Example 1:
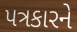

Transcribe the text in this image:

પત્રકારને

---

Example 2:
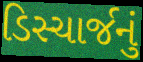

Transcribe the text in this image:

ડિસ્ચાર્જનું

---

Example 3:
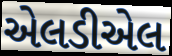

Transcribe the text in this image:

એલડીએલ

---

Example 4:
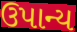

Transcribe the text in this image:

ઉપાન્ય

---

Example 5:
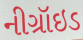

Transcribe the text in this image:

નીગ્રૉઇડ